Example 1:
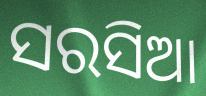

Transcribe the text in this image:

ସରସିଆ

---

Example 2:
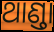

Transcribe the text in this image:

ଥାଣ୍ଡା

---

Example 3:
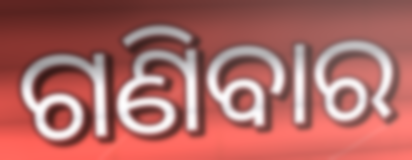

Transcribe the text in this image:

ଗଣିବାର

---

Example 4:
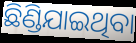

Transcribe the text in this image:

ଛିଣ୍ଡିଯାଇଥିବା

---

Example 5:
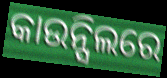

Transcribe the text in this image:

କାଉନ୍ସିଲରେ